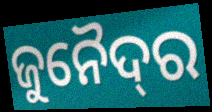
ଜୁନୈଦ୍‌ର